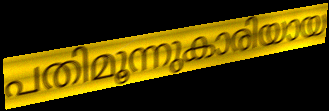
പതിമൂന്നുകാരിയായ